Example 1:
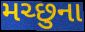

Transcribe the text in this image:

મચ્છુના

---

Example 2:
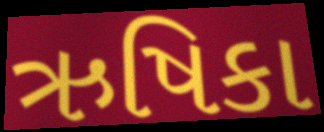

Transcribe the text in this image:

ઋષિકા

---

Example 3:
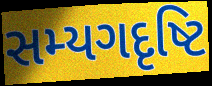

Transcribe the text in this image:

સમ્યગદૃષ્ટિ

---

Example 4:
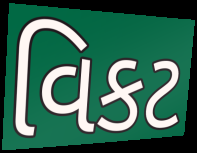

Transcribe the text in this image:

વિકટ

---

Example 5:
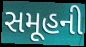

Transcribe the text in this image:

સમૂહની